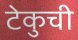
टेकुची